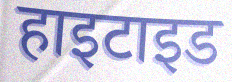
हाइटाइड